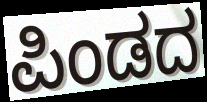
ಪಿಂಡದ